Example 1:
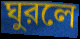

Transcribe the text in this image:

ঘুরলে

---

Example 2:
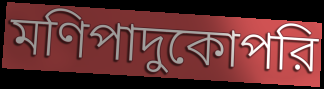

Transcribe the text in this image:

মণিপাদুকোপরি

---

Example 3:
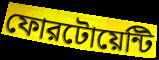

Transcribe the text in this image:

ফোরটোয়েন্টি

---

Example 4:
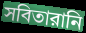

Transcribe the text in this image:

সবিতারানি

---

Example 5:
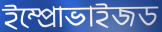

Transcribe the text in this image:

ইম্প্রোভাইজড